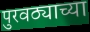
पुरवठ्याच्या